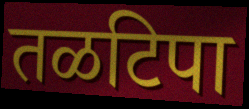
तळटिपा